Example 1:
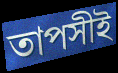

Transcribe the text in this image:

তাপসীই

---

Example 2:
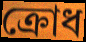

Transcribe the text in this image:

ক্রোধ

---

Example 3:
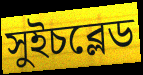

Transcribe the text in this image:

সুইচব্লেড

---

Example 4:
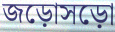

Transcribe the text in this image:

জড়োসড়ো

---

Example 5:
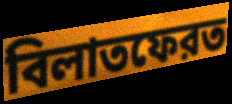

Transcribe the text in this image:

বিলাতফেরত